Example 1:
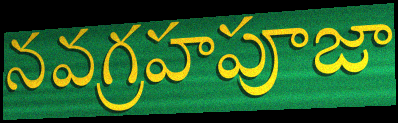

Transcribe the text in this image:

నవగ్రహపూజా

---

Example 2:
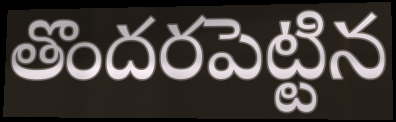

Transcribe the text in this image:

తొందరపెట్టిన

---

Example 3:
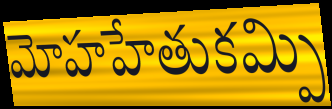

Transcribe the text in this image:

మోహహేతుకమ్పి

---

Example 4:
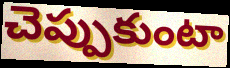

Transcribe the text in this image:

చెప్పుకుంటా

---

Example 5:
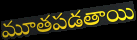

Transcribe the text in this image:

మూతపడతాయి